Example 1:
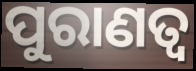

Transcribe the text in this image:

ପୁରାଣତ୍ୱ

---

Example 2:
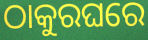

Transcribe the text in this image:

ଠାକୁରଘରେ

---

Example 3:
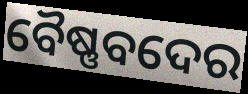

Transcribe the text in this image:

ବୈଷ୍ଣବଦେର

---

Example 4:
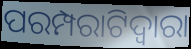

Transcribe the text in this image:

ପରମ୍ପରାଟିଦ୍ୱାରା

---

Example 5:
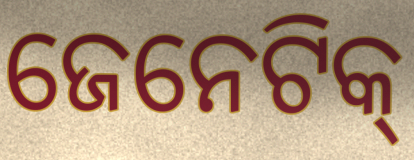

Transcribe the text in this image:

ଜେନେଟିକ୍